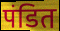
पंडित